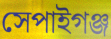
সেপাইগঞ্জ